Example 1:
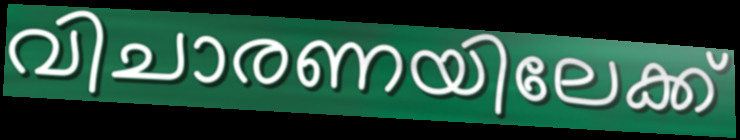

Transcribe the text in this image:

വിചാരണയിലേക്ക്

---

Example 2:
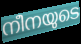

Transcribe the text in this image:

നീനയുടെ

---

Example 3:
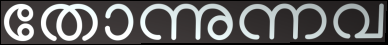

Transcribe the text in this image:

തോന്നുന്നവ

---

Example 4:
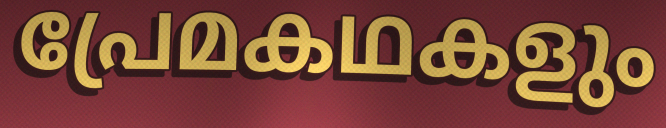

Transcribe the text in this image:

പ്രേമകഥകളും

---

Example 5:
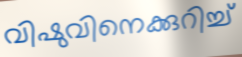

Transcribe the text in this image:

വിഷുവിനെക്കുറിച്ച്